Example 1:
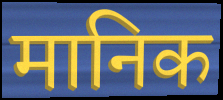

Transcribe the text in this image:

मानिक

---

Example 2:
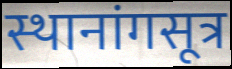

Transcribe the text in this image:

स्थानांगसूत्र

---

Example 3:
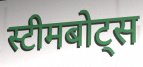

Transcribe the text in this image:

स्टीमबोट्स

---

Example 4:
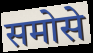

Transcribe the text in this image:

समोसे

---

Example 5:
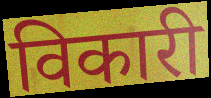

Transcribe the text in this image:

विकारी